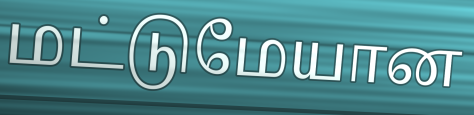
மட்டுமேயான